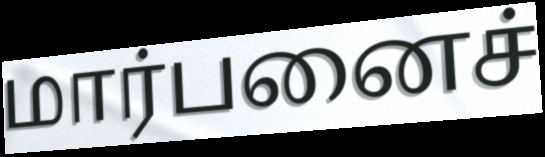
மார்பனைச்